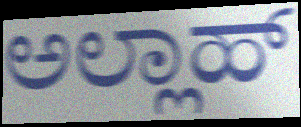
ಅಲ್ಲಾಹ್